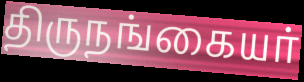
திருநங்கையர்